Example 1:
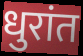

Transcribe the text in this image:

धुरांत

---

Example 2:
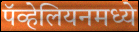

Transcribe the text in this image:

पॅव्हेलियनमध्ये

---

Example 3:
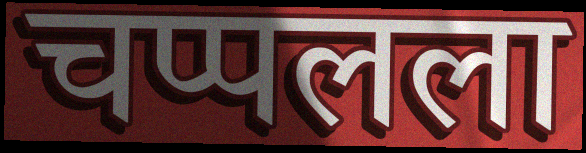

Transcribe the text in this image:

चप्पलला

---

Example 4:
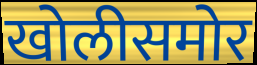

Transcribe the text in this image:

खोलीसमोर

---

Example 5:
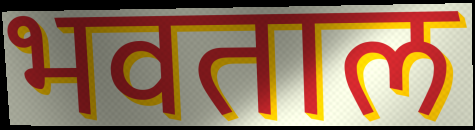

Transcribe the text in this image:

भवताल